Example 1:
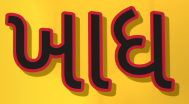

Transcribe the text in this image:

ખાધ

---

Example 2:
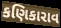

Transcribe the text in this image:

કણિકારાવ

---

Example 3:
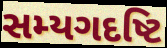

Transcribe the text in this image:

સમ્યગદષ્ટિ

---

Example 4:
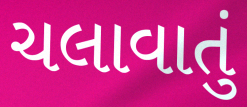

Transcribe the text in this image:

ચલાવાતું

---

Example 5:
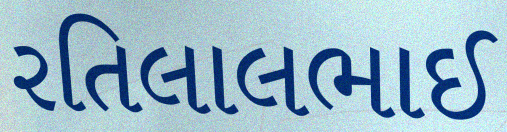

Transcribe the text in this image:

રતિલાલભાઈ